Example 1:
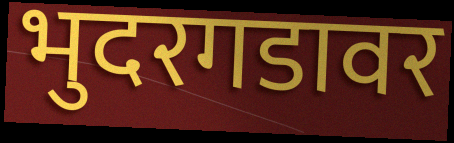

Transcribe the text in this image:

भुदरगडावर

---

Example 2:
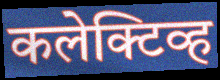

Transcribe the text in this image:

कलेक्टिव्ह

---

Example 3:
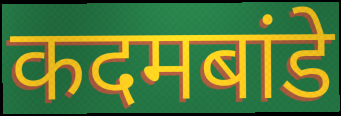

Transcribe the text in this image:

कदमबांडे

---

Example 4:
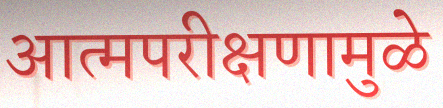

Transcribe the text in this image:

आत्मपरीक्षणामुळे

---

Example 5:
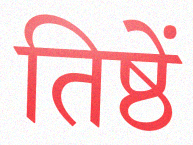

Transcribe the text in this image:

तिष्ठें